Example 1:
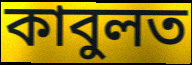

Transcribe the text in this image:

কাবুলত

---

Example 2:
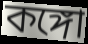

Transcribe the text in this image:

কঙ্গো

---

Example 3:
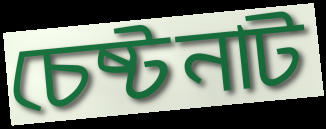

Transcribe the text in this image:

চেষ্টনাট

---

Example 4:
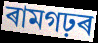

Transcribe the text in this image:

ৰামগঢ়ৰ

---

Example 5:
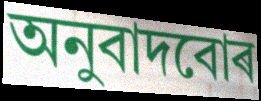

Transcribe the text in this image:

অনুবাদবোৰ